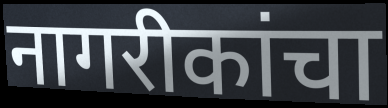
नागरीकांचा